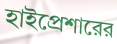
হাইপ্রেশারের